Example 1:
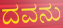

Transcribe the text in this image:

ದವನು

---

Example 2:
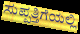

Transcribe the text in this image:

ಸುಪ್ಪತ್ತಿಗೆಯಲ್ಲಿ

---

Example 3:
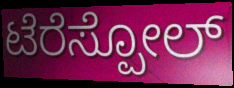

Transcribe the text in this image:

ಟೆರೆಸ್ಪೋಲ್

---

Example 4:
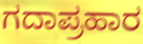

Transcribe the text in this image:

ಗದಾಪ್ರಹಾರ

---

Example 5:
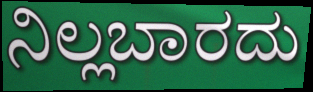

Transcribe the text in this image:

ನಿಲ್ಲಬಾರದು